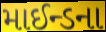
માઈન્ડના